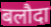
बलौदा